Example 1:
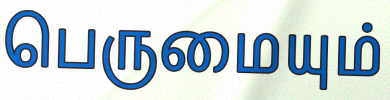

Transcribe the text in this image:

பெருமையும்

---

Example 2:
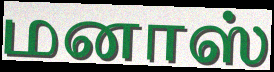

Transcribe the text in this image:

மனாஸ்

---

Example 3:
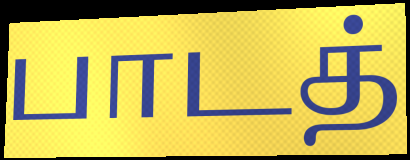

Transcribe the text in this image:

பாடத்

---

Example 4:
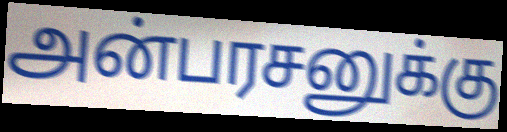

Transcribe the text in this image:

அன்பரசனுக்கு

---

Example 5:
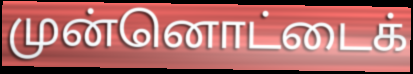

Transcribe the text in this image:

முன்னொட்டைக்